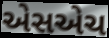
એસએચ